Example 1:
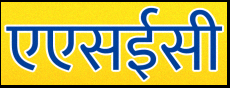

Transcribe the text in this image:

एएसईसी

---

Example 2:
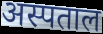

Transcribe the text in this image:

अस्पताल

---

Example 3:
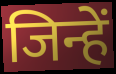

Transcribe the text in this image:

जिन्हें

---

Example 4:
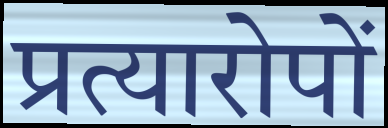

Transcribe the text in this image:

प्रत्यारोपों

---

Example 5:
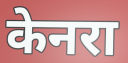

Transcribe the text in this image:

केनरा